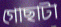
গোছাটা